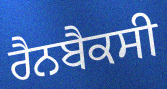
ਰੈਨਬੈਕਸੀ